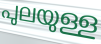
പുലയുള്ള